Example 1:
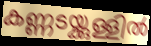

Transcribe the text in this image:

കണ്ണടയ്ക്കുള്ളിൽ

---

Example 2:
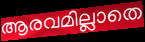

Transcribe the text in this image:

ആരവമില്ലാതെ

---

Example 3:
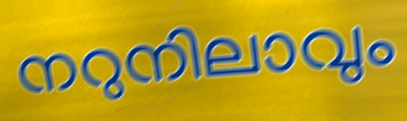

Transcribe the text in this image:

നറുനിലാവും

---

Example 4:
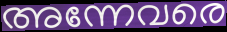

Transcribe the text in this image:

അന്നേവരെ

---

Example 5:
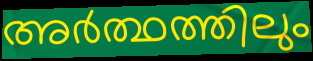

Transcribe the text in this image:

അർത്ഥത്തിലും